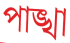
পাঙ্খা